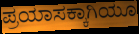
ಪ್ರಯಾಸಕ್ಕಾಗಿಯೂ